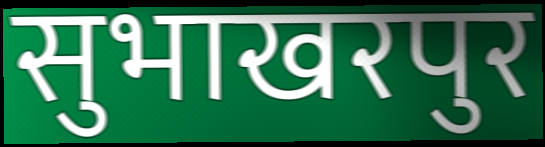
सुभाखरपुर